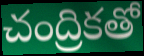
చంద్రికతో